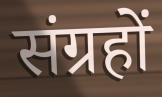
संग्रहों